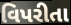
વિપરીતા